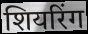
शियरिंग